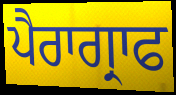
ਪੈਰਾਗ੍ਰਾਫ